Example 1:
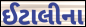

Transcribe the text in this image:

ઈટાલીના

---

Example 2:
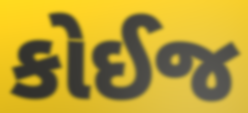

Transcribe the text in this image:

કોઈજ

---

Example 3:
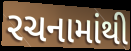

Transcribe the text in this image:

રચનામાંથી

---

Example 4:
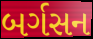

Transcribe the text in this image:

બર્ગસન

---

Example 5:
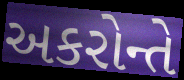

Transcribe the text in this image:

અકરોન્તે